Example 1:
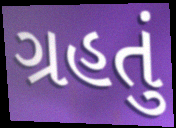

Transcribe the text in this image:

ગ્રહતું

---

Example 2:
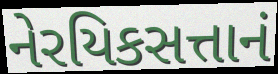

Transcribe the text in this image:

નેરયિકસત્તાનં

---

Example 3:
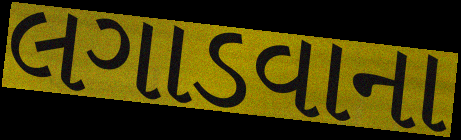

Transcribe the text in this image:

લગાડવાના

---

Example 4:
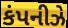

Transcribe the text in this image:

કંપનીઝે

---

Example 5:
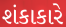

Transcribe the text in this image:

શંકાકારે